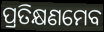
ପ୍ରତିକ୍ଷଣମେବ